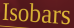
Isobars